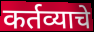
कर्तव्याचे